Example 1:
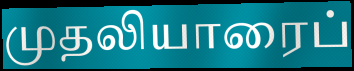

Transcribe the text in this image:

முதலியாரைப்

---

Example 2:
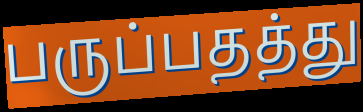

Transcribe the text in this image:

பருப்பதத்து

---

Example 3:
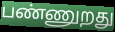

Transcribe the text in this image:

பண்ணுறது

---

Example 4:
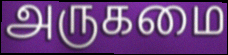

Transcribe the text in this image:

அருகமை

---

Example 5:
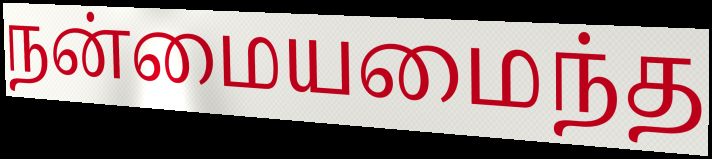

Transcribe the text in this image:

நன்மையமைந்த